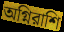
অগ্নিরাশি